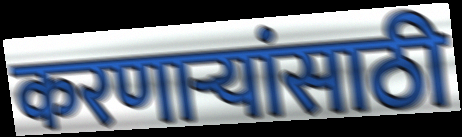
करणार्‍यांसाठी